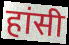
हांसी